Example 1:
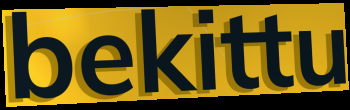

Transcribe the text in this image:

bekittu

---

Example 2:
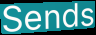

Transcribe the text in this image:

Sends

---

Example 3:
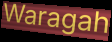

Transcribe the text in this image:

Waragah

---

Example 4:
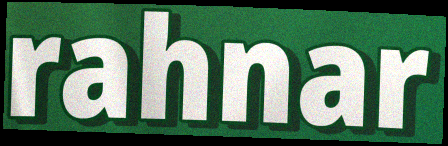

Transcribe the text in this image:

rahnar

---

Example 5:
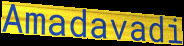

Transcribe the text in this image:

Amadavadi